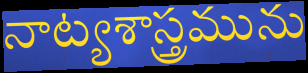
నాట్యశాస్త్రమును